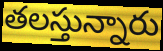
తలస్తున్నారు